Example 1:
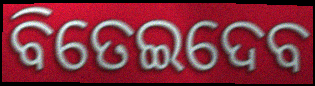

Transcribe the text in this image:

ବିତେଇଦେବ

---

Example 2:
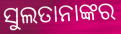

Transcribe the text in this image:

ସୁଲତାନାଙ୍କର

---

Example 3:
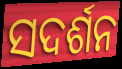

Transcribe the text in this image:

ସଦର୍ଶନ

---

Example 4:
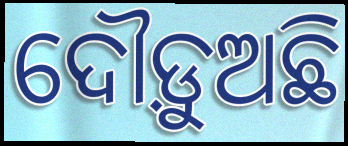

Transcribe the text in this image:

ଦୌଡ଼ୁଅଛି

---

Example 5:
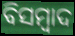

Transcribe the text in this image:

ବିସମ୍ୱାଦ